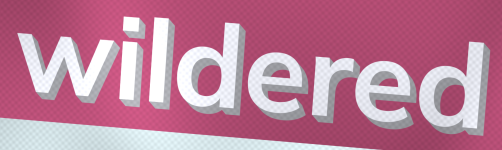
wildered